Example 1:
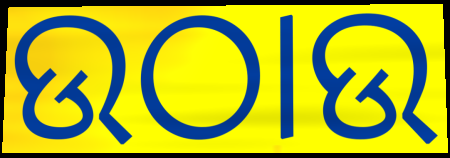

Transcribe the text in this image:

ଉଠାଉ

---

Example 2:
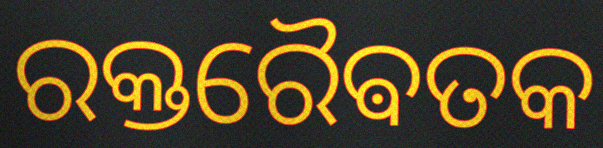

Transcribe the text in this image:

ରକ୍ତରୈଵତକ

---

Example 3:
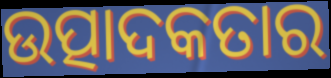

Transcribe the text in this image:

ଉତ୍ପାଦକତାର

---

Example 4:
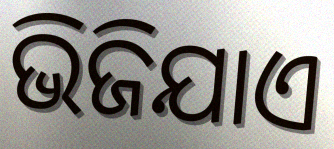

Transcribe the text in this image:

ଭିଜିଯାଏ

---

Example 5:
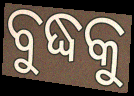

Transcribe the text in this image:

ବୁଦ୍ଧକୁ